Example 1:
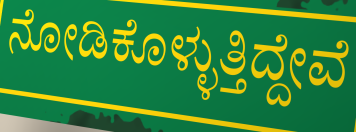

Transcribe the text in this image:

ನೋಡಿಕೊಳ್ಳುತ್ತಿದ್ದೇವೆ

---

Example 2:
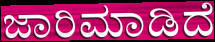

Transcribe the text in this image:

ಜಾರಿಮಾಡಿದೆ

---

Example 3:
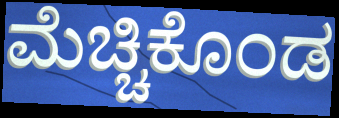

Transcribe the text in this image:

ಮೆಚ್ಚಿಕೊಂಡ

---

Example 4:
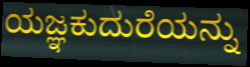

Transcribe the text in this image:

ಯಜ್ಞಕುದುರೆಯನ್ನು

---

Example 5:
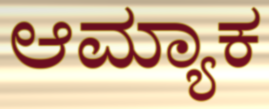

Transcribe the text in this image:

ಆಮ್ಯಾಕ